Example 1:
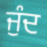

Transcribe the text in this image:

ਜੁੰਦ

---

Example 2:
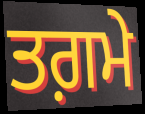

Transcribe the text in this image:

ਤਗ਼ਮੇ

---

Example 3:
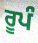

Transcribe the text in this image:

ਰੂਪੰ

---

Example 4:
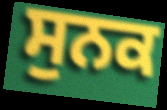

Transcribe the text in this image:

ਸੁਨਕ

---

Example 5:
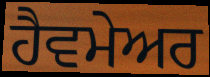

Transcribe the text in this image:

ਹੈਵਮੇਅਰ